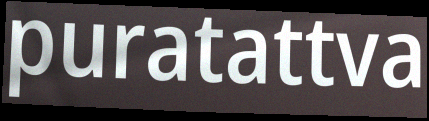
puratattva